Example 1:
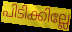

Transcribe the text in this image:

പിടിക്കില്ലേ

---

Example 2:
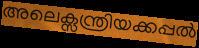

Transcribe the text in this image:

അലെക്സന്ത്രിയക്കപ്പൽ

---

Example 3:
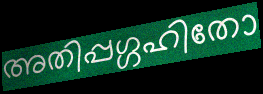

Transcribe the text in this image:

അതിപ്പഗ്ഗഹിതോ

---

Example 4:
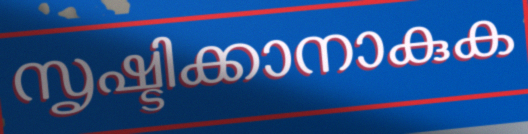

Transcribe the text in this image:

സൃഷ്ടിക്കാനാകുക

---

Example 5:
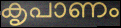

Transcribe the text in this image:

കൃപാണം